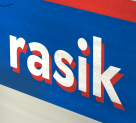
rasik